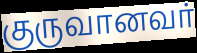
குருவானவர்